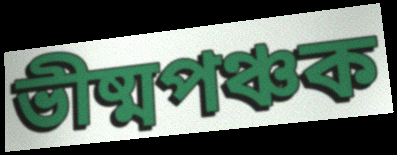
ভীষ্মপঞ্চক